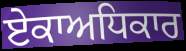
ਏਕਾਅਧਿਕਾਰ